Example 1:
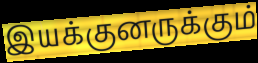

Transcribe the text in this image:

இயக்குனருக்கும்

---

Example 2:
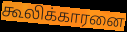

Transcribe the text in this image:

கூலிக்காரனை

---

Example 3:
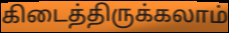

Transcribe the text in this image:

கிடைத்திருக்கலாம்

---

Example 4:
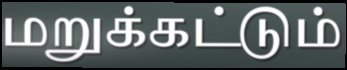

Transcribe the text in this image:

மறுக்கட்டும்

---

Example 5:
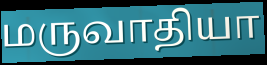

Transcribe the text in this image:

மருவாதியா